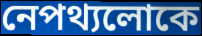
নেপথ্যলোকে